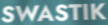
SWASTIK